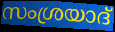
സംശ്രയാദ്